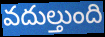
వదుల్తుంది